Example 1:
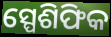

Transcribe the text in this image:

ସ୍ପେଶିଫିକ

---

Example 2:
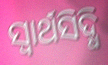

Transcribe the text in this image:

ସ୍ୱାର୍ଥସିଦ୍ଧି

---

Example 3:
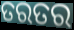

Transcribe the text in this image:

ତରତର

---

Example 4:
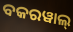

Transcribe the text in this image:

ବକରୱାଲ୍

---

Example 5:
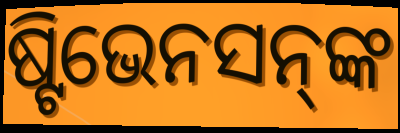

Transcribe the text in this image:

ଷ୍ଟିଭେନସନ୍‍ଙ୍କ